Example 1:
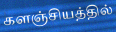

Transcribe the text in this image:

களஞ்சியத்தில்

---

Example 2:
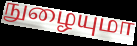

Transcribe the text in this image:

நுழையுமா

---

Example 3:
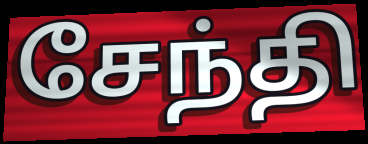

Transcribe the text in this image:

சேந்தி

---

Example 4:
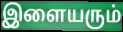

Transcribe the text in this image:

இளையரும்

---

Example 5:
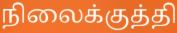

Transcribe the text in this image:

நிலைக்குத்தி